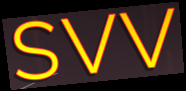
svv